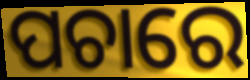
ପଚାରେ